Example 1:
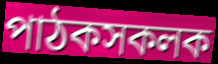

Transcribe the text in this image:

পাঠকসকলক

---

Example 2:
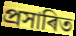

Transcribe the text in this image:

প্ৰসাৰিত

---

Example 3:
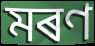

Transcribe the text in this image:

মৰণ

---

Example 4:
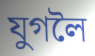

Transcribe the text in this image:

যুগলৈ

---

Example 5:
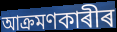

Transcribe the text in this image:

আক্ৰমণকাৰীৰ